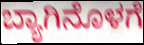
ಬ್ಯಾಗಿನೊಳಗೆ